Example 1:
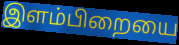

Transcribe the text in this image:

இளம்பிறையை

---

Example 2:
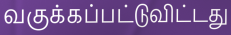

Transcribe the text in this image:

வகுக்கப்பட்டுவிட்டது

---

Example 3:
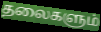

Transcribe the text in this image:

தலைகளும்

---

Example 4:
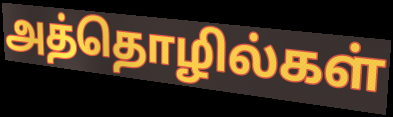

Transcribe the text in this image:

அத்தொழில்கள்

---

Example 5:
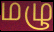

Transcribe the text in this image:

மழு